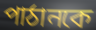
পাঠানকে